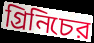
গ্রিনিচের